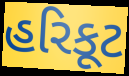
હરિકૂટ